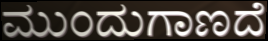
ಮುಂದುಗಾಣದೆ